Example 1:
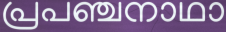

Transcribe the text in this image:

പ്രപഞ്ചനാഥാ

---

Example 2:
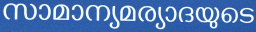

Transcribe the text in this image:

സാമാന്യമര്യാദയുടെ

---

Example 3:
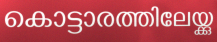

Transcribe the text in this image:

കൊട്ടാരത്തിലേയ്ക്കു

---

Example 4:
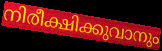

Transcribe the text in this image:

നിരീക്ഷിക്കുവാനും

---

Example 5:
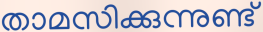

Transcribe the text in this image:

താമസിക്കുന്നുണ്ട്